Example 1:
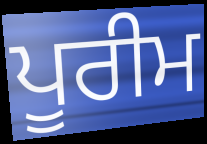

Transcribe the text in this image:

ਪੂਰੀਮ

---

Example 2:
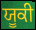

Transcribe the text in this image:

ਯੂਕੀ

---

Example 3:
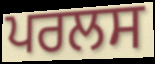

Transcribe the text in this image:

ਪਰਲਸ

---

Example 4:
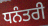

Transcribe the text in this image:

ਧਨੰਤਰੀ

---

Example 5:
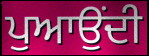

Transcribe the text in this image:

ਪੁਆਉਂਦੀ